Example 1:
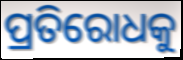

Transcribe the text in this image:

ପ୍ରତିରୋଧକୁ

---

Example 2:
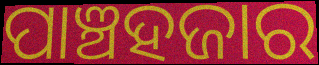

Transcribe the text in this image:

ପାଞ୍ଚହଜାର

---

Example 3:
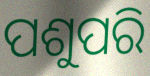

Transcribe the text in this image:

ପଶୁପରି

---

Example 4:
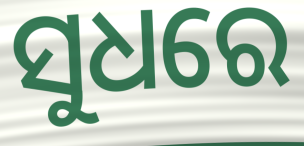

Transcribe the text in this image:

ସୁଧରେ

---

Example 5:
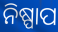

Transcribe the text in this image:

ନିଷ୍ପାପ